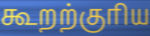
கூறற்குரிய